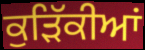
ਕੁੜਿੱਕੀਆਂ